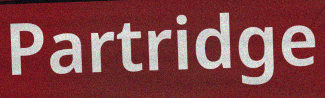
Partridge